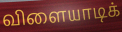
விளையாடிக்